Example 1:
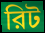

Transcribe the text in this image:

রিট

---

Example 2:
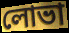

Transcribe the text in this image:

লোভা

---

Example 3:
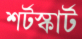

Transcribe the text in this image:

শর্টস্কার্ট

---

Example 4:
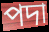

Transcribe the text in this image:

পদা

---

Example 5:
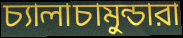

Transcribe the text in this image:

চ্যালাচামুন্ডারা